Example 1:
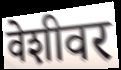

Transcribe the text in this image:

वेशीवर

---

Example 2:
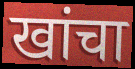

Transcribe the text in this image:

खांचा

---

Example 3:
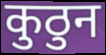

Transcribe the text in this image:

कुठुन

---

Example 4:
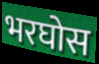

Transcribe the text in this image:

भरघोस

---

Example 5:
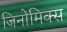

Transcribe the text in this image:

जिनोमिक्स